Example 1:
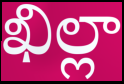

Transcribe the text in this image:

ఖిల్లా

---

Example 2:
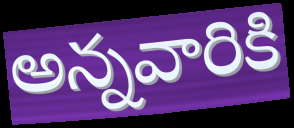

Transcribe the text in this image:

అన్నవారికి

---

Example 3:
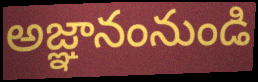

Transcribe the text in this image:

అజ్ఞానంనుండి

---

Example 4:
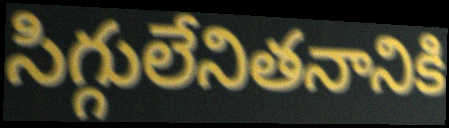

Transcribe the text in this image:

సిగ్గులేనితనానికి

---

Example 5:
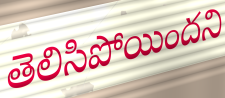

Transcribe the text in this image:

తెలిసిపోయిందని